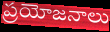
ప్రయోజనాలు